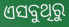
ଏସବୁଥିରୁ